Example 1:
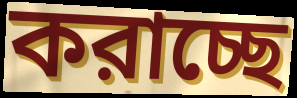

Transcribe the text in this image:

করাচ্ছে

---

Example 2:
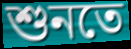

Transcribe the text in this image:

শুনতে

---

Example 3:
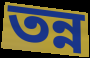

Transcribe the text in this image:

তন্ন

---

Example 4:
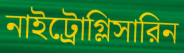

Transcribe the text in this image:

নাইট্রোগ্লিসারিন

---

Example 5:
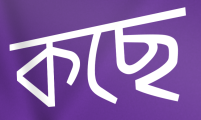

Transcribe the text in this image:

কছে